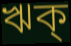
ঋক্